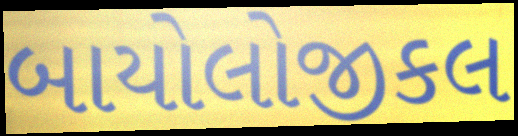
બાયોલોજીકલ